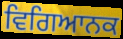
ਵਿਗਿਆਨਕ